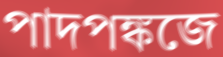
পাদপঙ্কজে